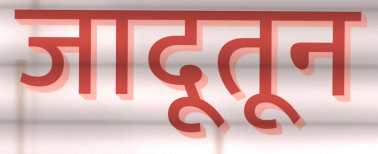
जादूतून